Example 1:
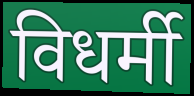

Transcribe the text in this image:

विधर्मी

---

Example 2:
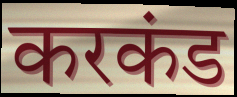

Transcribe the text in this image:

करकंड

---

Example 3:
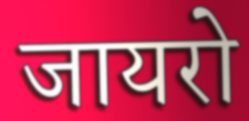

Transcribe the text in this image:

जायरो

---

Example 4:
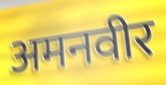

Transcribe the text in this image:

अमनवीर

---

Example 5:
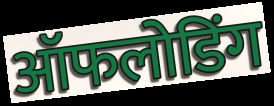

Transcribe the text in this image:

ऑफलोडिंग